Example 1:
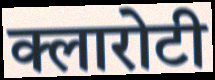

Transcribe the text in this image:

क्लारोटी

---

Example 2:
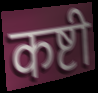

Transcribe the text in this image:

कष्टी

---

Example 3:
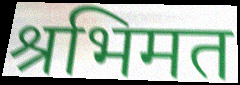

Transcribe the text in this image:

श्रभिमत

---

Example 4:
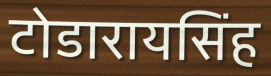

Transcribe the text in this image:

टोडारायसिंह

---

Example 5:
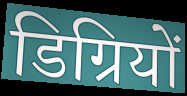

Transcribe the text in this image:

डिग्रियों